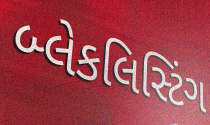
બ્લેકલિસ્ટિંગ